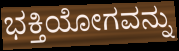
ಭಕ್ತಿಯೋಗವನ್ನು